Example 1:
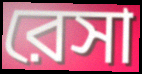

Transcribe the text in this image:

রেসা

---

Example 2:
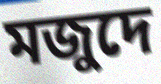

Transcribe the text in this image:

মজুদে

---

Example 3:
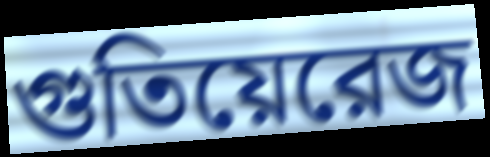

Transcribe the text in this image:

গুতিয়েরেজ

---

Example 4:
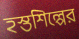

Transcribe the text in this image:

হস্তশিল্পের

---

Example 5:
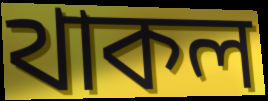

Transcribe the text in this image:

থাকল